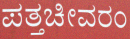
ಪತ್ತಚೀವರಂ